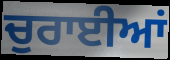
ਚੁਰਾਈਆਂ